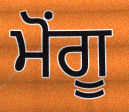
ਮੋਂਗੂ